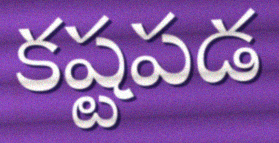
కష్టపడ